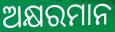
ଅକ୍ଷରମାନ